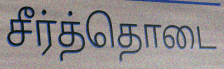
சீர்த்தொடை